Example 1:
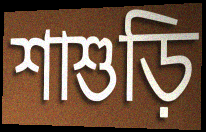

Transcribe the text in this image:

শাশুড়ি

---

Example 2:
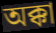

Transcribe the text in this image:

অক্কা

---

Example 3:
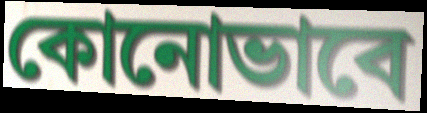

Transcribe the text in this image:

কোনোভাবে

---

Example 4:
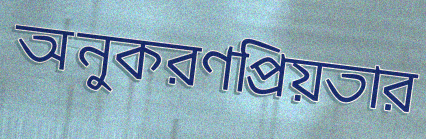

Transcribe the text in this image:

অনুকরণপ্রিয়তার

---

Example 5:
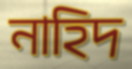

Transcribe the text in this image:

নাহিদ